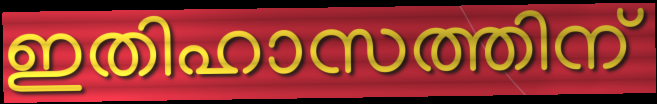
ഇതിഹാസത്തിന്